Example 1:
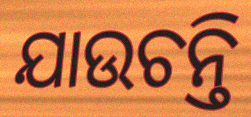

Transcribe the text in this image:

ଯାଉଚନ୍ତି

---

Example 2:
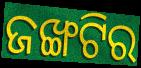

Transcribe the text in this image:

ଜଙ୍ଖଟିର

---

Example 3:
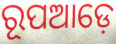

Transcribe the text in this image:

ରୂପଆଡ଼େ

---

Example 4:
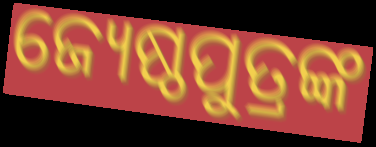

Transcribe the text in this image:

ଜ୍ୟେଷ୍ଠପୁତ୍ରଙ୍କ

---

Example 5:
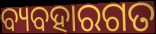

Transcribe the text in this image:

ବ୍ୟବହାରଗତ